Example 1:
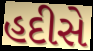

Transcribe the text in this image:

હદીસે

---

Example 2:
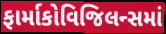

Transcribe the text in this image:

ફાર્માકોવિજિલન્સમાં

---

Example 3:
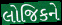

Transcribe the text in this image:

લોજિકને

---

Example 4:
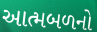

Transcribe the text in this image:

આત્મબળનો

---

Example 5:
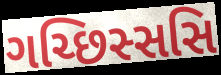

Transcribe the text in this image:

ગચ્છિસ્સસિ